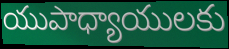
యుపాధ్యాయులకు